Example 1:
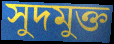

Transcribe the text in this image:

সুদমুক্ত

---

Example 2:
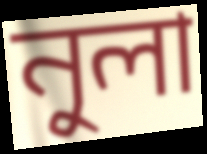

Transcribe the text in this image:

নুলা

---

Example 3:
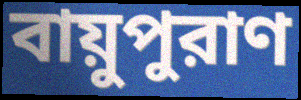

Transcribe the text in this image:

বায়ুপুরাণ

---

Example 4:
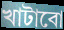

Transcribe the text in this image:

খাটাবো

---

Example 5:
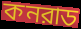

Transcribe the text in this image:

কনরাড